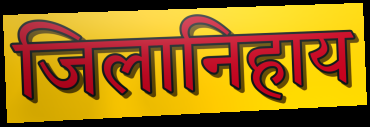
जिलानिहाय